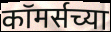
कॉमर्सच्या